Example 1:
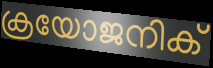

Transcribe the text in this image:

ക്രയോജനിക്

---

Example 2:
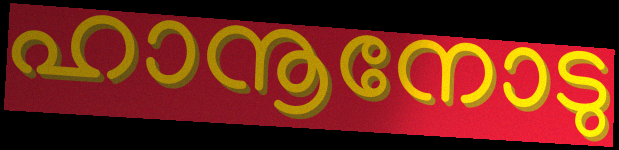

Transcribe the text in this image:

ഹാനൂനോടു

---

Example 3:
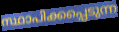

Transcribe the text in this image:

സ്ഥാപിക്കപ്പെടുന്ന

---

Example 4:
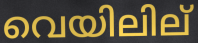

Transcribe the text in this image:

വെയിലില്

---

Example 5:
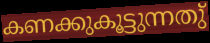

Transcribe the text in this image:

കണക്കുകൂട്ടുന്നതു്